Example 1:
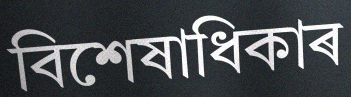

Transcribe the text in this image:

বিশেষাধিকাৰ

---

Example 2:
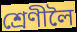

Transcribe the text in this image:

শ্ৰেণীলৈ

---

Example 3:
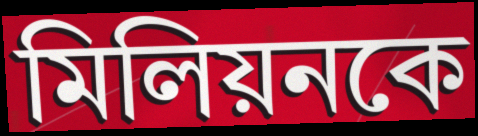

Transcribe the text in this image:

মিলিয়নকে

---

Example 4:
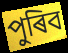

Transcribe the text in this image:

পুৰিব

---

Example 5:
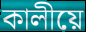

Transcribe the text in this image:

কালীয়ে